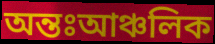
অন্তঃআঞ্চলিক